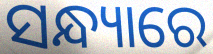
ସନ୍ଧ୍ୟାରେ